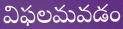
విఫలమవడం